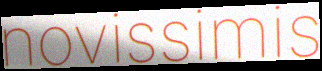
novissimis